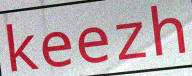
keezh